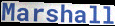
Marshall